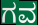
ಗವ